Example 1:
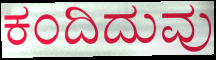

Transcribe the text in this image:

ಕಂದಿದುವು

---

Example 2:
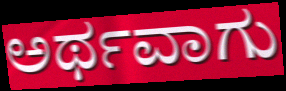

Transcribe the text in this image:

ಅರ್ಥವಾಗು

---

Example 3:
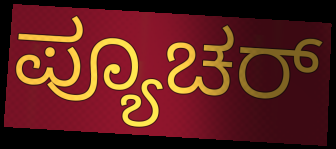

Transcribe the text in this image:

ಪ್ಯೂಚರ್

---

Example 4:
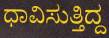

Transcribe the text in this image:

ಧಾವಿಸುತ್ತಿದ್ದ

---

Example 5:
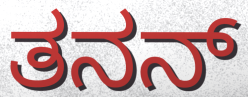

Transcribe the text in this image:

ತನನ್